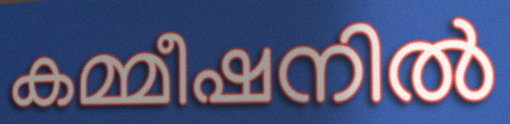
കമ്മീഷനിൽ